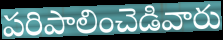
పరిపాలించెడివారు